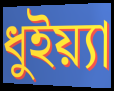
ধুইয়্যা